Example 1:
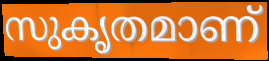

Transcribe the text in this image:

സുകൃതമാണ്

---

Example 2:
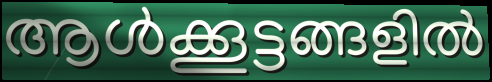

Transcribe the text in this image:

ആൾക്കൂട്ടങ്ങളിൽ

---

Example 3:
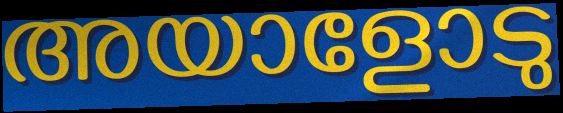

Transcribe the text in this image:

അയാളോടു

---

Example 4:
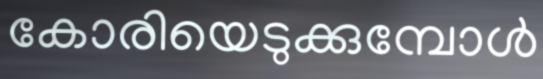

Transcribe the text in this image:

കോരിയെടുക്കുമ്പോൾ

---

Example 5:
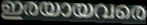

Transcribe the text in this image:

ഇരയായവരെ